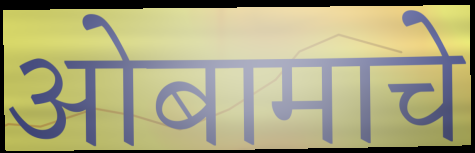
ओबामाचे